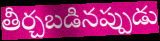
తీర్చబడినప్పుడు